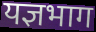
यज्ञभाग